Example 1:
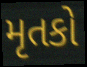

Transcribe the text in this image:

મૃતકો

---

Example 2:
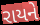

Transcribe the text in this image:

રાયને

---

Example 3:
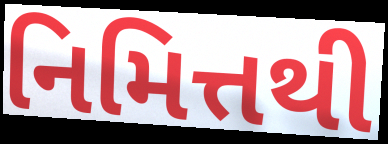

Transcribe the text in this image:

નિમિત્તથી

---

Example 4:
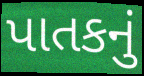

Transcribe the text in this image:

પાતકનું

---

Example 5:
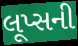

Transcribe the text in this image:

લૂપ્સની